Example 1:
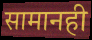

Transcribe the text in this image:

सामानही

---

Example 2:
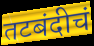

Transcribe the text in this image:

तटबंदीचं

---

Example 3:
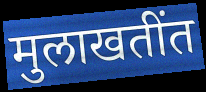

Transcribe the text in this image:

मुलाखतींत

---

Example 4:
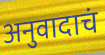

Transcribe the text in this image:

अनुवादाचं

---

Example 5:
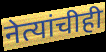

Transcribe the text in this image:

नेत्यांचीही